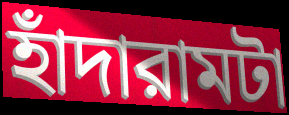
হাঁদারামটা